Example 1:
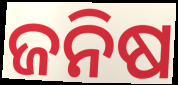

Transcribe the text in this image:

ଜନିଷ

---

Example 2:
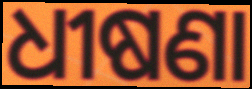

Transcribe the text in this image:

ଧୀଷଣା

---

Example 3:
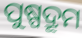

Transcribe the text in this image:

ପୁଷ୍ପଦ୍ରୂମ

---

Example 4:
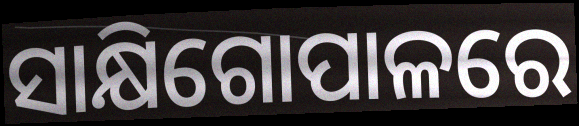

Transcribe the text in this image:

ସାକ୍ଷିଗୋପାଳରେ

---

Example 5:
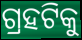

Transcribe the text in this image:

ଗ୍ରହଟିକୁ